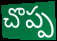
చొప్ప